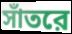
সাঁতরে